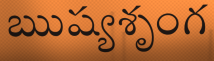
ఋష్యశృంగ